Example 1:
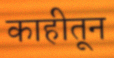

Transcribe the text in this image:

काहीतून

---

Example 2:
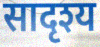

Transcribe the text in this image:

सादृश्य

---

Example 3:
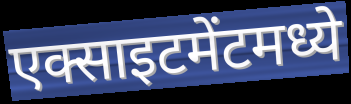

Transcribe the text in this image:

एक्साइटमेंटमध्ये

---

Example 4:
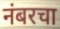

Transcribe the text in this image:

नंबरचा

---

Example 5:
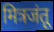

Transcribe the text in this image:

मित्रजंतू